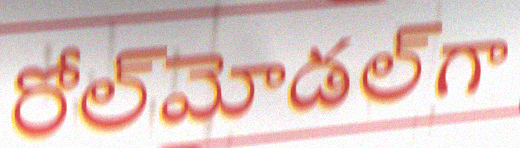
రోల్‌మోడల్‌గా